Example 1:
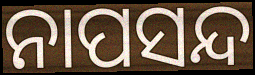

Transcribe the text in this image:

ନାପସନ୍ଦ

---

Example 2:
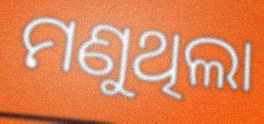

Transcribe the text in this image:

ମଣୁଥିଲା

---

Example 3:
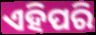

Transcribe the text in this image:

ଏହିପରି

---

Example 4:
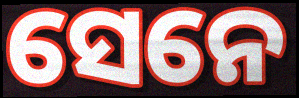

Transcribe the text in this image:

ସେନେ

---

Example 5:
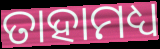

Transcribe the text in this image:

ତାହାମଧ୍ୟ